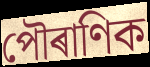
পৌৰাণিক